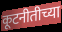
कूटनीतीच्या